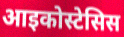
आइकोस्टेसिस